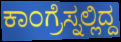
ಕಾಂಗ್ರೆಸ್ನಲ್ಲಿದ್ದ